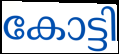
കോട്ടി